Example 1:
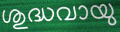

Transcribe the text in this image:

ശുദ്ധവായു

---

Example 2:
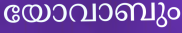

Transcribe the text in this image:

യോവാബും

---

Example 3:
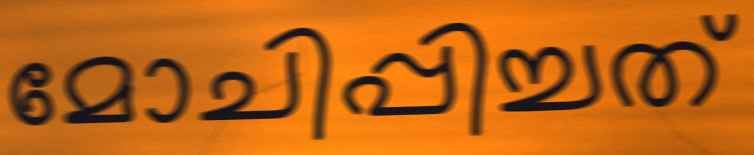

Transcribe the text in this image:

മോചിപ്പിച്ചത്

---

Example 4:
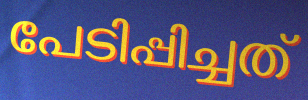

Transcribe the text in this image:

പേടിപ്പിച്ചത്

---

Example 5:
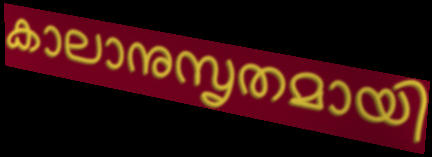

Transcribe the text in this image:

കാലാനുസൃതമായി